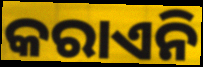
କରାଏନି